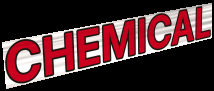
CHEMICAL